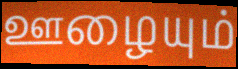
ஊழையும்